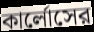
কার্লোসের